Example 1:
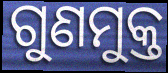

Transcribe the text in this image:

ଗୁଣମୁକ୍ତ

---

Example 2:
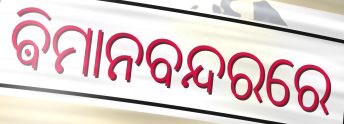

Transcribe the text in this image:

ଵିମାନବନ୍ଦରରେ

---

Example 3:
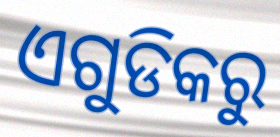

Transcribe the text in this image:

ଏଗୁଡିକରୁ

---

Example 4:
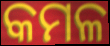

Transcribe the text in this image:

କମଳ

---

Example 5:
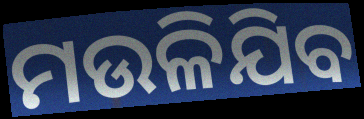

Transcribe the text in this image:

ମଉଳିଯିବ